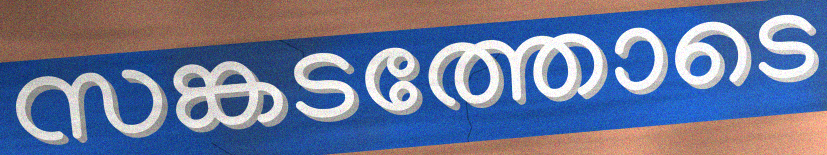
സങ്കടത്തോടെ